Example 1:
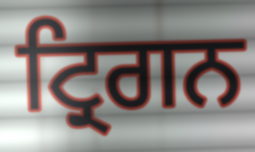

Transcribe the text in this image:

ਟ੍ਰਿਗਨ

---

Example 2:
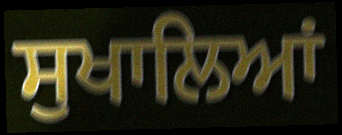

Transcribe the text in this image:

ਸੁਖਾਲਿਆਂ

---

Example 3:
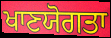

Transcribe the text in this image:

ਖਾਣਯੋਗਤਾ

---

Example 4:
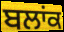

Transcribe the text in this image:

ਬਲਾਂਕ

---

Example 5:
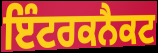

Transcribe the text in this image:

ਇੰਟਰਕਨੈਕਟ